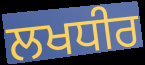
ਲਖਧੀਰ